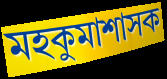
মহকুমাশাসক